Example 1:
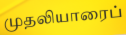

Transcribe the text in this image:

முதலியாரைப்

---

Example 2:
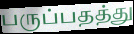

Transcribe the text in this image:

பருப்பதத்து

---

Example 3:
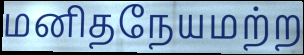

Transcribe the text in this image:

மனிதநேயமற்ற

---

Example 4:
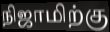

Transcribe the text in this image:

நிஜாமிற்கு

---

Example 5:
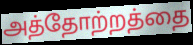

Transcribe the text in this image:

அத்தோற்றத்தை